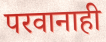
परवानाही